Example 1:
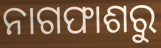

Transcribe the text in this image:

ନାଗଫାଶରୁ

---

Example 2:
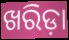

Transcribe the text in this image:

ଖରିଡ଼ା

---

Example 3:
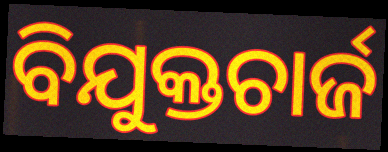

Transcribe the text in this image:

ବିଯୁକ୍ତଚାର୍ଜ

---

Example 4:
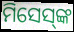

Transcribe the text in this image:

ମିସେସ୍‍ଙ୍କ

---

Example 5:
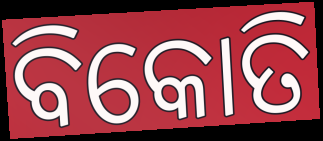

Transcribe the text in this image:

ବିକୋତି